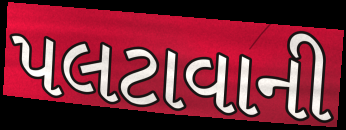
પલટાવાની